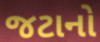
જટાનો